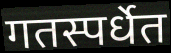
गतस्पर्धेत